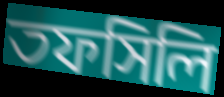
তফসিলি